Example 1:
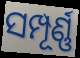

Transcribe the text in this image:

ସମ୍ପୂର୍ଣ୍ଣ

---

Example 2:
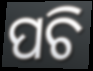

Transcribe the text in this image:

ପଚି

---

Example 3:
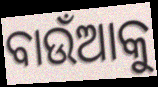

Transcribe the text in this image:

ବାଉଁଆକୁ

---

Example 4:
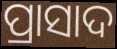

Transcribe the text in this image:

ପ୍ରାସାଦ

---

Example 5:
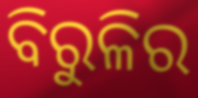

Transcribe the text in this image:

ବିରୁଳିର